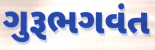
ગુરૂભગવંત